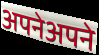
अपनेअपने